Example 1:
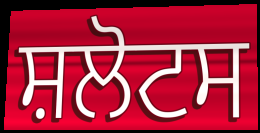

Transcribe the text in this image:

ਸ਼ਲੋਟਸ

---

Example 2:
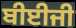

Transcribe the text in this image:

ਬੀਈਜੀ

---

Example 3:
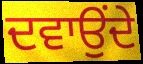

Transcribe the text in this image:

ਦਵਾਉਂਦੇ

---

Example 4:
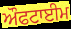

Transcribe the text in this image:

ਔਫਟਾਈਮ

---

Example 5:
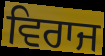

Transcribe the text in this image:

ਵਿਰਾਜ